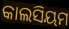
କାଲସିୟମ